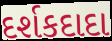
દર્શકદાદા